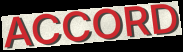
ACCORD